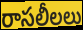
రాసలీలలు